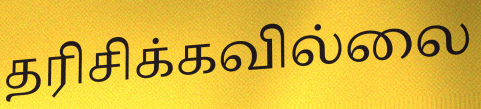
தரிசிக்கவில்லை